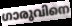
ഗാരുവിനെ